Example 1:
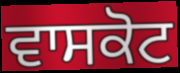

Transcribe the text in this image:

ਵਾਸਕੋਟ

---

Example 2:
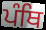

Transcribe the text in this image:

ਪੰਥਿ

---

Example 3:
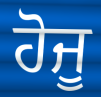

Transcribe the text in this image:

ਹੋਜੂ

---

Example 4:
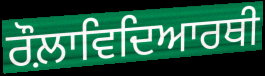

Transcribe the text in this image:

ਰੌਲ਼ਾਵਿਦਿਆਰਥੀ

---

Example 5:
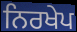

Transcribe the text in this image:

ਨਿਰਖੇਪ